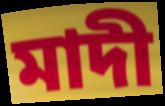
মাদী